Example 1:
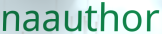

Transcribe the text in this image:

naauthor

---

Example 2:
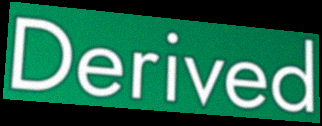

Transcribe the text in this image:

Derived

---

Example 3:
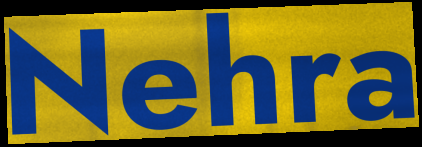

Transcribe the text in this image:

Nehra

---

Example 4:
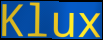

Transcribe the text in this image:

Klux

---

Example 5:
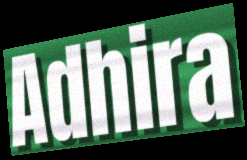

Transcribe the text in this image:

Adhira